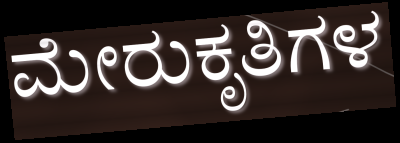
ಮೇರುಕೃತಿಗಳ